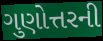
ગુણોત્તરની